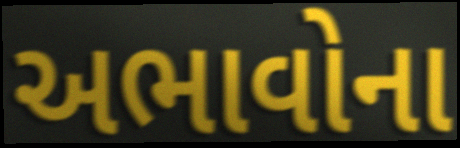
અભાવોના